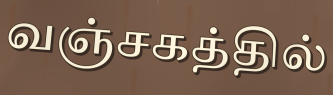
வஞ்சகத்தில்